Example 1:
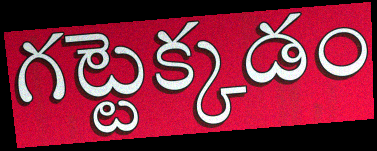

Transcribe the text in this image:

గట్టెక్కడం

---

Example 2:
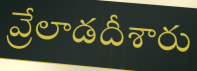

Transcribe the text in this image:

వ్రేలాడదీశారు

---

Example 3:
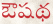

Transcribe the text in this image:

ఔషథ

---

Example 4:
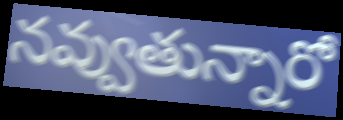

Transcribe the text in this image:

నవ్వుతున్నారో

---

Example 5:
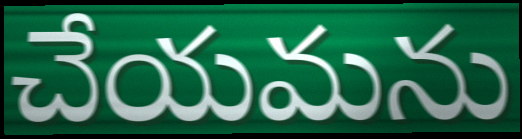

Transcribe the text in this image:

చేయమను